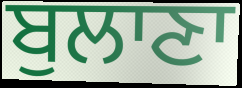
ਬੁਲਾਣਾ